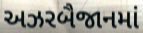
અઝરબૈજાનમાં